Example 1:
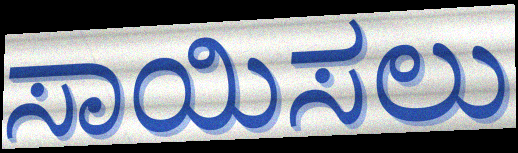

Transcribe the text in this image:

ಸಾಯಿಸಲು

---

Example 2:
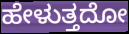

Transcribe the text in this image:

ಹೇಳುತ್ತದೋ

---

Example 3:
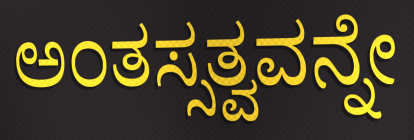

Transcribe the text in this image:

ಅಂತಸ್ಸತ್ವವನ್ನೇ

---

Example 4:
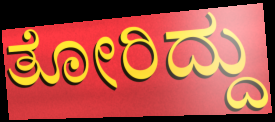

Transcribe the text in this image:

ತೋರಿದ್ದು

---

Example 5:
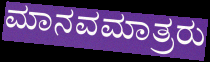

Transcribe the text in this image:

ಮಾನವಮಾತ್ರರು